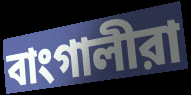
বাংগালীরা